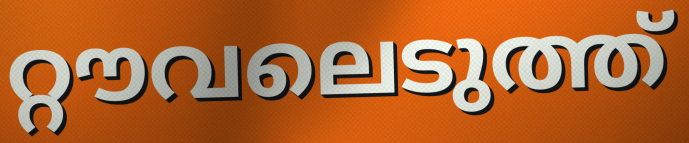
റ്റൗവലെടുത്ത്